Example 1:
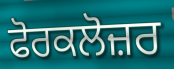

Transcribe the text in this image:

ਫੋਰਕਲੋਜ਼ਰ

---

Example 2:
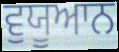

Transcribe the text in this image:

ਵੁਯੂਆਨ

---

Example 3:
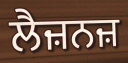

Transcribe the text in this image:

ਲੈਜ਼ਨਜ਼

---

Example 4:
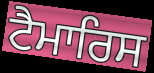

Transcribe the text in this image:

ਟੈਮਾਰਿਸ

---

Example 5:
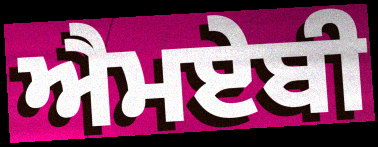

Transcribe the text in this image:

ਐਮਏਬੀ